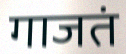
गाजतं